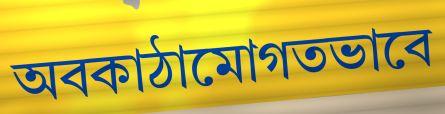
অবকাঠামোগতভাবে